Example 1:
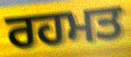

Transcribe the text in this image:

ਰਹਮਤ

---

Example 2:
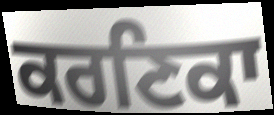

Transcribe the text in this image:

ਕਰਣਿਕਾ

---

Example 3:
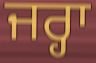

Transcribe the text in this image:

ਜਰ੍ਹਾ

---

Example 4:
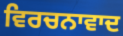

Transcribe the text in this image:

ਵਿਰਚਨਾਵਾਦ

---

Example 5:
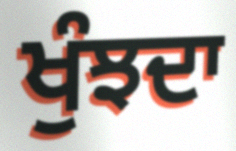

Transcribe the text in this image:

ਖੁੰਝਦਾ